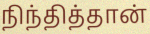
நிந்தித்தான்